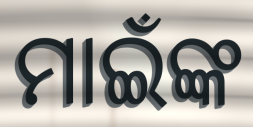
ମାଇଁଙ୍କ